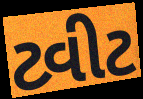
ટ્વીટ